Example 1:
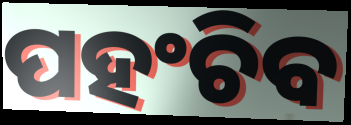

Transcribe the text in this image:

ପହଂଚିବ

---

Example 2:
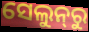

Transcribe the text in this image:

ସେଲୁନ୍‌ରୁ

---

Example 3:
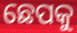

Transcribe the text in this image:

ଛେପକୁ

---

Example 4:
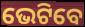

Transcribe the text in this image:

ଭେଟିବେ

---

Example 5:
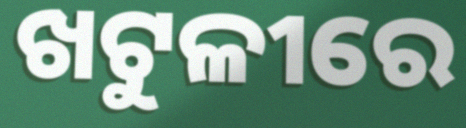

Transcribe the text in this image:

ଖଟୁଳୀରେ